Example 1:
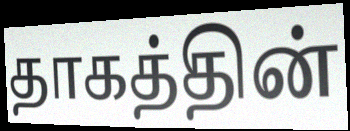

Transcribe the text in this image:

தாகத்தின்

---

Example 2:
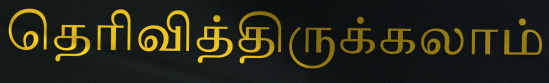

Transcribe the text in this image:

தெரிவித்திருக்கலாம்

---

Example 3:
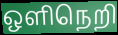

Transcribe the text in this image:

ஒளிநெறி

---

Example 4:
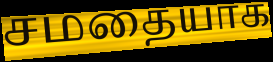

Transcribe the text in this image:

சமதையாக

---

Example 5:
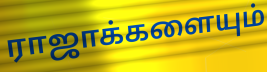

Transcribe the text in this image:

ராஜாக்களையும்